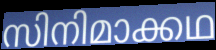
സിനിമാക്കഥ